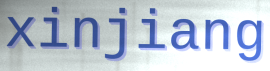
xinjiang